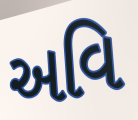
અવિ